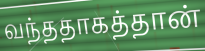
வந்ததாகத்தான்